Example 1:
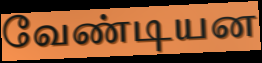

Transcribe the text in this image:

வேண்டியன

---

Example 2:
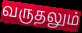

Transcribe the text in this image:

வருதலும்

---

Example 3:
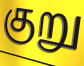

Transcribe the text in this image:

குறு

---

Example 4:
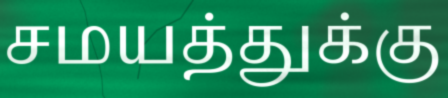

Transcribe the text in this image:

சமயத்துக்கு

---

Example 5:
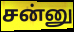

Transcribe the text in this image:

சன்னு